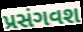
પ્રસંગવશ